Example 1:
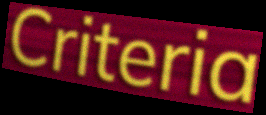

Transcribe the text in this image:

Criteria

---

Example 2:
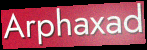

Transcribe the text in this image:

Arphaxad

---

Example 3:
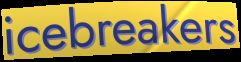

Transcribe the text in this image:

icebreakers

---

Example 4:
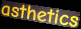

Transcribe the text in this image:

asthetics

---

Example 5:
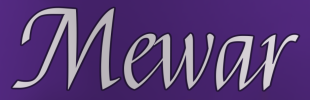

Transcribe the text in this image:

Mewar